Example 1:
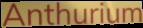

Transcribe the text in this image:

Anthurium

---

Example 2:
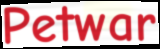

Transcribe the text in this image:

Petwar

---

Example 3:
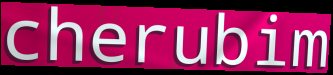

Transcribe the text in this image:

cherubim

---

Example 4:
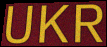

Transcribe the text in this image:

UKR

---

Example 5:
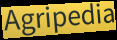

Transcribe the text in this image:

Agripedia